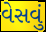
વેસવું